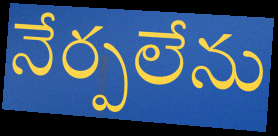
నేర్పలేను